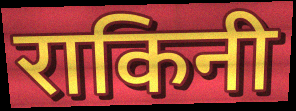
राकिनी